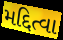
મદ્દિત્વા